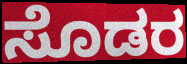
ಸೊಡರ